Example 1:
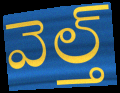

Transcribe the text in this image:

వెల్త్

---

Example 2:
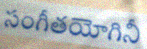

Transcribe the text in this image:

సంగీతయోగినీ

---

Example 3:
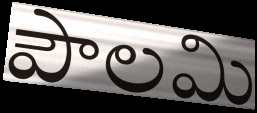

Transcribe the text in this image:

పౌలమి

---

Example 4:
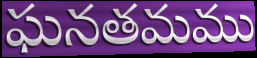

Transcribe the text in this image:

ఘనతమము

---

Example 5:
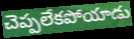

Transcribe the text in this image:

చెప్పలేకపోయాడు